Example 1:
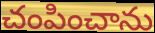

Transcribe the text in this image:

చంపించాను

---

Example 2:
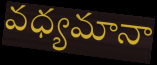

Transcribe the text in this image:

వధ్యమానా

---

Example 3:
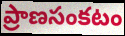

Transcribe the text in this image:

ప్రాణసంకటం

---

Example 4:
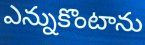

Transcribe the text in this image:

ఎన్నుకొంటాను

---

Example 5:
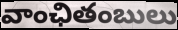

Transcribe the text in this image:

వాంఛితంబులు